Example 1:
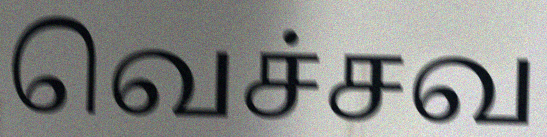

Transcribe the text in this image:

வெச்சவ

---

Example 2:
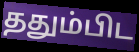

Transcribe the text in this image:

ததும்பிட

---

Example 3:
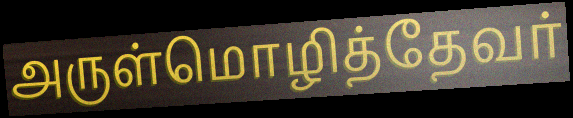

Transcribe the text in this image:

அருள்மொழித்தேவர்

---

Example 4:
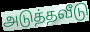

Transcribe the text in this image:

அடுத்தவீடு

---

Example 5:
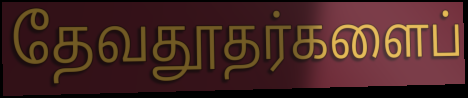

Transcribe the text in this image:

தேவதூதர்களைப்